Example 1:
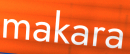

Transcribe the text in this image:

makara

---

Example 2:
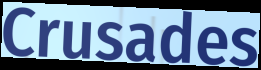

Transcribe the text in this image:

Crusades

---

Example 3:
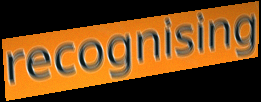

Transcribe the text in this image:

recognising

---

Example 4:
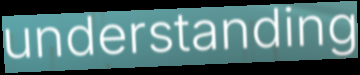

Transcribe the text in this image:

understanding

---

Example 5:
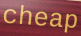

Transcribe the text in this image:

cheap